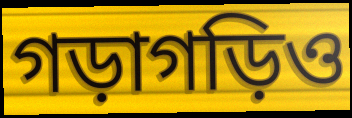
গড়াগড়িও